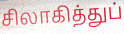
சிலாகித்துப்